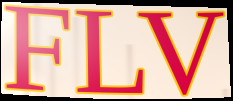
FLV